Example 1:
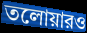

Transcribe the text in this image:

তলোয়ারও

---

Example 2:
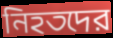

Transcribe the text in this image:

নিহতদের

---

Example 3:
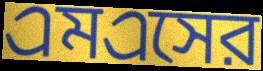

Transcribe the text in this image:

এমএসের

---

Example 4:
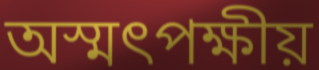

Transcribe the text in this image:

অস্মৎপক্ষীয়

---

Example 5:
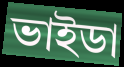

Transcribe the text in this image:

ভাইডা